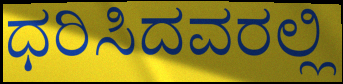
ಧರಿಸಿದವರಲ್ಲಿ